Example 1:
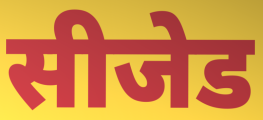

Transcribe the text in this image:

सीजेड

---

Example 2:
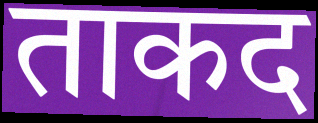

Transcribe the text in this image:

ताकद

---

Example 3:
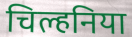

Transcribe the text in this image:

चिल्हनिया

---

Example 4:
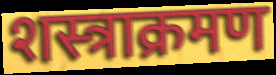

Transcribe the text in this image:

शस्त्राक्रमण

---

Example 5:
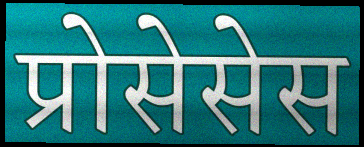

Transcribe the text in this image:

प्रोसेसेस